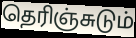
தெரிஞ்சுடும்